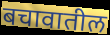
बचावातील